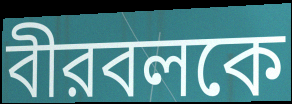
বীরবলকে